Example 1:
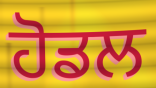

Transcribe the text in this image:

ਹੋਡਲ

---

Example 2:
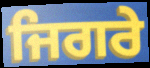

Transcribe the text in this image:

ਜਿਗਰੇ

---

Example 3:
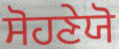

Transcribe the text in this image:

ਸੋਹਣੇਯੋ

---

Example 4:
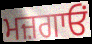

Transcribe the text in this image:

ਮਜ਼ਗਾਓਂ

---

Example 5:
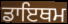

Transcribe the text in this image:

ਡਾਇਥਮ